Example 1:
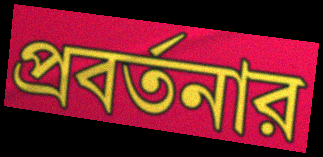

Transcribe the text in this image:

প্রবর্তনার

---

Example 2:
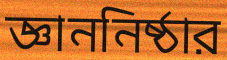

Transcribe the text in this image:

জ্ঞাননিষ্ঠার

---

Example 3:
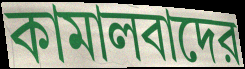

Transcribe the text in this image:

কামালবাদের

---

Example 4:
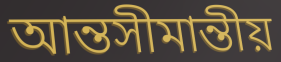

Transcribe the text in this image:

আন্তসীমান্তীয়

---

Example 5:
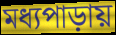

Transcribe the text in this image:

মধ্যপাড়ায়